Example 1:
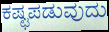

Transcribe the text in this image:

ಕಷ್ಟಪಡುವುದು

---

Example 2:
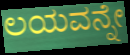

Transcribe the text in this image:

ಲಯವನ್ನೇ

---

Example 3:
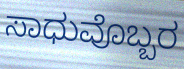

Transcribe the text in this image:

ಸಾಧುವೊಬ್ಬರ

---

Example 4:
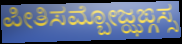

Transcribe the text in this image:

ಪೀತಿಸಮ್ಬೋಜ್ಝಙ್ಗಸ್ಸ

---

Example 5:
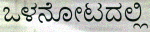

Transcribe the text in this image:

ಒಳನೋಟದಲ್ಲಿ